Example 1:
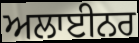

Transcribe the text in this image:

ਅਲਾਈਨਰ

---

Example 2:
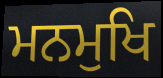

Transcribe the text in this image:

ਮਨਮੁਖਿ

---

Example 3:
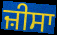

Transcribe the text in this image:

ਜ਼ੀਸਾ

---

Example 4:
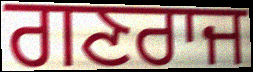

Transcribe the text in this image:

ਗਣਰਾਜ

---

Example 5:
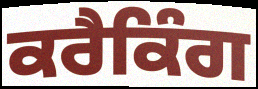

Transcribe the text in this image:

ਕਰੈਕਿੰਗ